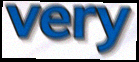
very